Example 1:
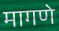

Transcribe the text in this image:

मागणे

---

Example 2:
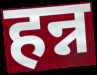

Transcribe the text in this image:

हन्न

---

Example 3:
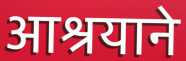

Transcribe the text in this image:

आश्रयाने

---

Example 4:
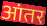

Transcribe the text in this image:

आंतर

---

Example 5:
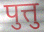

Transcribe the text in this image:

पुत्तु